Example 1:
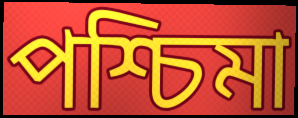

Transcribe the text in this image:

পশ্চিমা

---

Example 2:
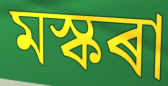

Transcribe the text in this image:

মস্কৰা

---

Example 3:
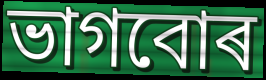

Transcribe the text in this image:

ভাগবোৰ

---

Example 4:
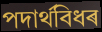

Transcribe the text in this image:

পদাৰ্থবিধৰ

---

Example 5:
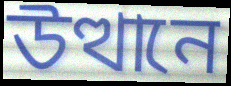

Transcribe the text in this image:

উত্থানে